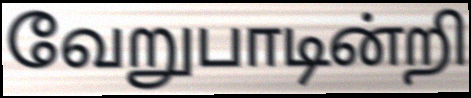
வேறுபாடின்றி